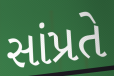
સાંપ્રતે